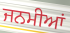
ਜਨਮੀਆਂ